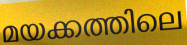
മയക്കത്തിലെ